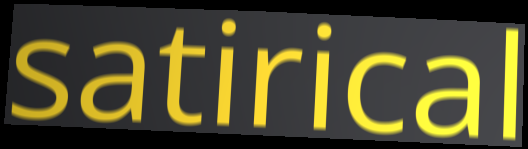
satirical